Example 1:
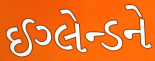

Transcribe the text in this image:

ઈગ્લેન્ડને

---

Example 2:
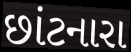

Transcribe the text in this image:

છાંટનારા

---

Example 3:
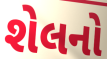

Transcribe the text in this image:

શેલનો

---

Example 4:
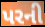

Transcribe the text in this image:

પરની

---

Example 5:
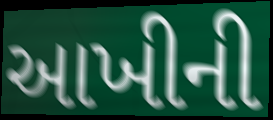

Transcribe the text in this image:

આખીની